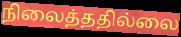
நிலைத்ததில்லை